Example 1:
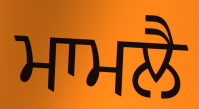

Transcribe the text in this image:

ਮਾਮਲੈ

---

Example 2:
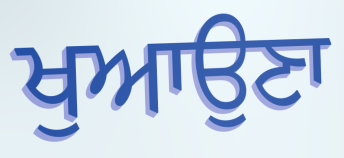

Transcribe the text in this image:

ਖੁਆਉਣਾ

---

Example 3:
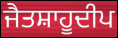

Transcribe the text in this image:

ਜੈਤਸ਼ਾਹੂਦੀਪ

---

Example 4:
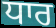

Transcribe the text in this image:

ਧਾਰ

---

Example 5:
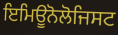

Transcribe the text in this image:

ਇਮਿਊਨੋਲੋਜਿਸਟ